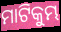
ମାଟିକୁମ୍ଭ